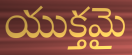
యుక్తమై